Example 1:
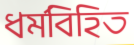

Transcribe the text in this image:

ধর্মবিহিত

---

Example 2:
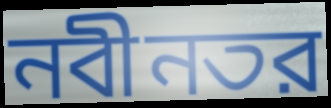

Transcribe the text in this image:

নবীনতর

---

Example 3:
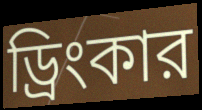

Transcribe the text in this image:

ড্রিংকার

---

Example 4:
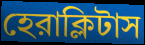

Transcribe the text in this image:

হেরাক্লিটাস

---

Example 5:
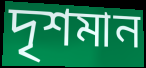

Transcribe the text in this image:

দৃশমান